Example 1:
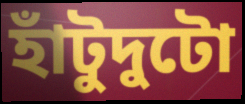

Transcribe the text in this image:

হাঁটুদুটো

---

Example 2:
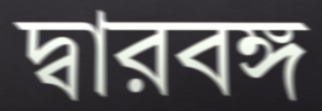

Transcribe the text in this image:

দ্বারবঙ্গ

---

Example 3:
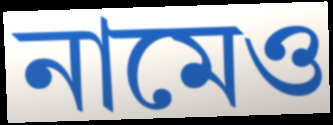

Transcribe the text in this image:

নামেও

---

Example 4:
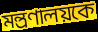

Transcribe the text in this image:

মন্ত্রণালয়কে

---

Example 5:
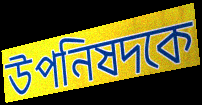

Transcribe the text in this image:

উপনিষদকে